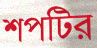
শপটির